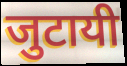
जुटायी